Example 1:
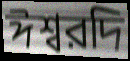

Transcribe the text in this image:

ঈশ্বরদি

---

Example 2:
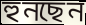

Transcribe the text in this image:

হুনছেন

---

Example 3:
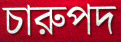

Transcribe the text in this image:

চারুপদ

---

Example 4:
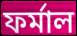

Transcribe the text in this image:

ফর্মাল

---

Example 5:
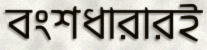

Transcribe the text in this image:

বংশধারারই